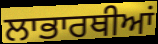
ਲਾਭਾਰਥੀਆਂ